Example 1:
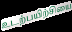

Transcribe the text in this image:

உடற்பயிற்சியை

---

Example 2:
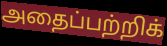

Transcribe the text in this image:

அதைப்பற்றிக்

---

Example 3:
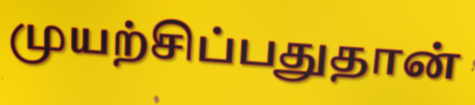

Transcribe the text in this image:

முயற்சிப்பதுதான்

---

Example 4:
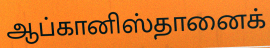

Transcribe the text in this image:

ஆப்கானிஸ்தானைக்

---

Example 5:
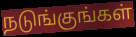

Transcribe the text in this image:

நடுங்குங்கள்